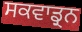
ਸਕਵਾਡ੍ਰਨ